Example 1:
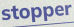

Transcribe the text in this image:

stopper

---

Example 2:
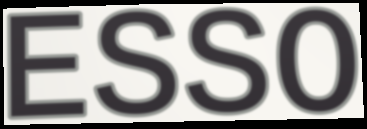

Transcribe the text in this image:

ESSO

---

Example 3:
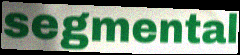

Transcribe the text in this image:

segmental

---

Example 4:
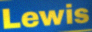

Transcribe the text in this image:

Lewis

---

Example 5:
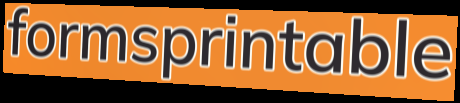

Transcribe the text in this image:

formsprintable